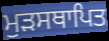
ਮੁੜਸਥਾਪਿਤ